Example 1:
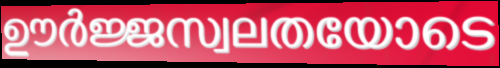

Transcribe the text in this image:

ഊർജ്ജസ്വലതയോടെ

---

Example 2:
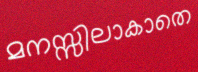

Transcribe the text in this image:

മനസ്സിലാകാതെ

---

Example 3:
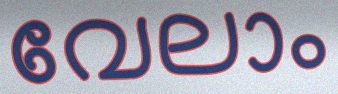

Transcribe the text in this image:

വേലാം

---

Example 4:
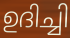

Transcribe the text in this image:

ഉദിച്ചി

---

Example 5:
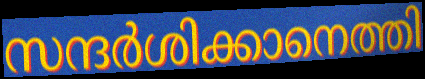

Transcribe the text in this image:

സന്ദർശിക്കാനെത്തി